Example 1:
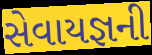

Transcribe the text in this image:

સેવાયજ્ઞની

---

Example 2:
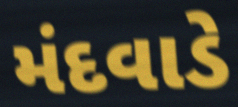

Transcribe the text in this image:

મંદવાડે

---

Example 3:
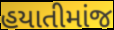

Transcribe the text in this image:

હયાતીમાંજ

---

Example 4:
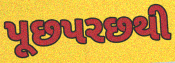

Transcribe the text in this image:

પૂછપરછથી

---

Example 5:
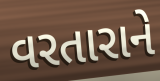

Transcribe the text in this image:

વરતારાને